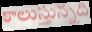
కాలుస్తున్నది